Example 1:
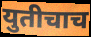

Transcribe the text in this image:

युतीचाच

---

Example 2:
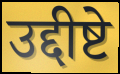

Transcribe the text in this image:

उद्दीष्टे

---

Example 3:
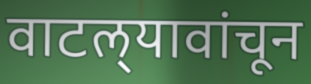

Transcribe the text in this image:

वाटल्यावांचून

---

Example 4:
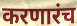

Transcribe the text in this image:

करणारंच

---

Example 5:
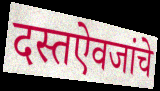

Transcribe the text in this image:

दस्तऐवजांचे